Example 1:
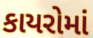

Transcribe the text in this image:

કાયરોમાં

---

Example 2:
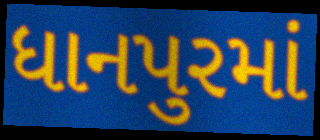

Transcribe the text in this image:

ધાનપુરમાં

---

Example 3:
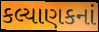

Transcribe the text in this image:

કલ્યાણકનાં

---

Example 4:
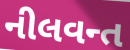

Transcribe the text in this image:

નીલવન્ત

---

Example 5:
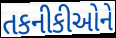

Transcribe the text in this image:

તકનીકીઓને